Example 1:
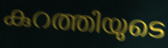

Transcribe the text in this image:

കുറത്തിയുടെ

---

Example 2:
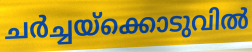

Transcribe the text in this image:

ചർച്ചയ്ക്കൊടുവിൽ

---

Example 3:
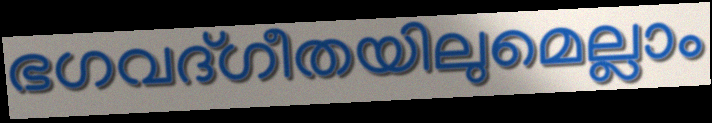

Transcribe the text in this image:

ഭഗവദ്ഗീതയിലുമെല്ലാം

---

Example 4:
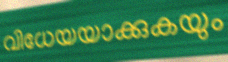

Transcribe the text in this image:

വിധേയയാക്കുകയും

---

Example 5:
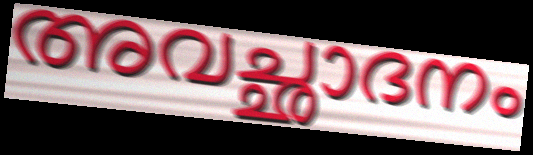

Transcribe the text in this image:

അവച്ഛാദനം